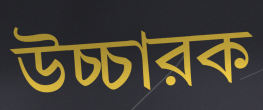
উচ্চারক